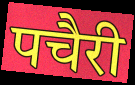
पचैरी